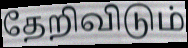
தேறிவிடும்